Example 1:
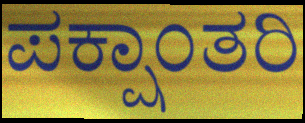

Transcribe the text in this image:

ಪಕ್ಷಾಂತರಿ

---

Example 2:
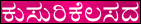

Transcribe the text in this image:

ಕುಸುರಿಕೆಲಸದ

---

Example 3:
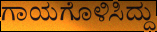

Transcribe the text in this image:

ಗಾಯಗೊಳಿಸಿದ್ದು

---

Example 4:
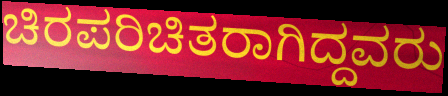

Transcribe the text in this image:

ಚಿರಪರಿಚಿತರಾಗಿದ್ದವರು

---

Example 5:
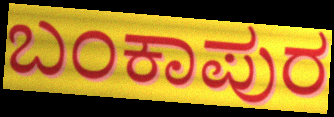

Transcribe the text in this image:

ಬಂಕಾಪುರ